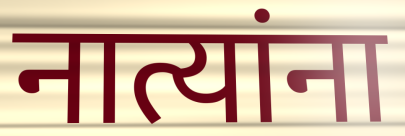
नात्यांना